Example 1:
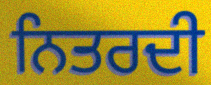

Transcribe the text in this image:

ਨਿਤਰਦੀ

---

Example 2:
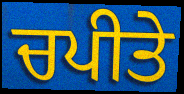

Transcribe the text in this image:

ਚਪੀਤੇ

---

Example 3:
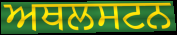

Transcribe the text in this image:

ਅਥਲਸਟਨ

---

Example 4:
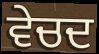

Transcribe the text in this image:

ਵੇਚਦ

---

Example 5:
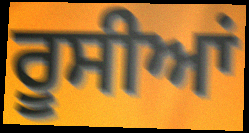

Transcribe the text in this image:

ਰੂਸੀਆਂ